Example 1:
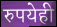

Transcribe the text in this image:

रुपयेही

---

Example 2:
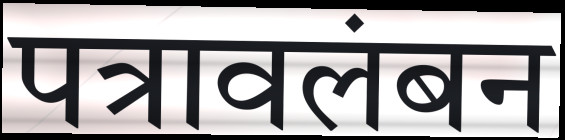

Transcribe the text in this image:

पत्रावलंबन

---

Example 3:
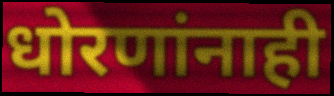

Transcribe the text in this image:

धोरणांनाही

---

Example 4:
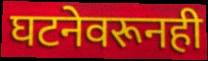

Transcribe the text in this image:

घटनेवरूनही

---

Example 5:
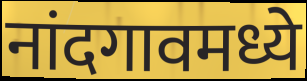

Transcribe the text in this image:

नांदगावमध्ये